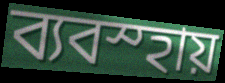
ব্যবস্হায়